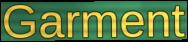
Garment